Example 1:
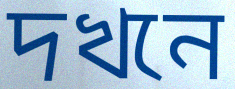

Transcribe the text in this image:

দখনে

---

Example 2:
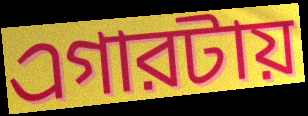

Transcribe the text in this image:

এগারটায়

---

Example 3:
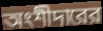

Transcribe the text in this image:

অংশীদারের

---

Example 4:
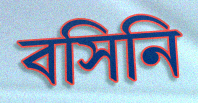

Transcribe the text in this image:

বসিনি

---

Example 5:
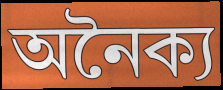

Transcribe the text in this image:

অনৈক্য